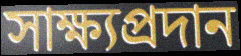
সাক্ষ্যপ্রদান